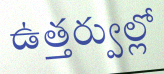
ఉత్తర్వుల్లో